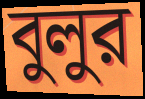
বুলুর